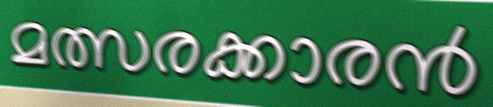
മത്സരക്കാരൻ